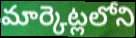
మార్కెట్లలోని